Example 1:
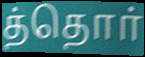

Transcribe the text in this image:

த்தொர்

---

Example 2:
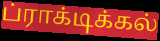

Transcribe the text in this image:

ப்ராக்டிக்கல்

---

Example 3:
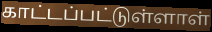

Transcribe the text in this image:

காட்டப்பட்டுள்ளாள்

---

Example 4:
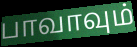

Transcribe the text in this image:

பாவாவும்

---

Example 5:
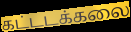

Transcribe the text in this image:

கட்டடக்கலை